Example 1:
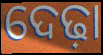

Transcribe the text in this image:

ଦେଢ଼ା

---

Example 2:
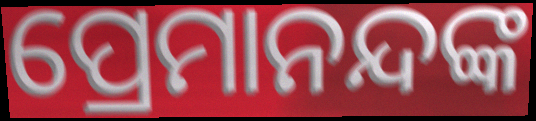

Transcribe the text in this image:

ପ୍ରେମାନନ୍ଦଙ୍କ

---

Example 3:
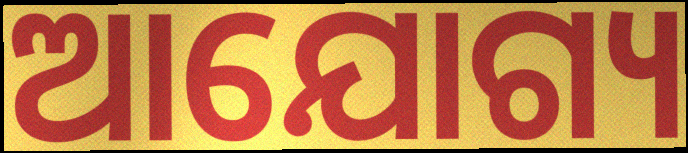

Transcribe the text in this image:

ଆଯୋଗ୍ୟ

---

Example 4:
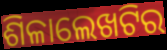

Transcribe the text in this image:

ଶିଳାଲେଖଟିର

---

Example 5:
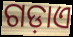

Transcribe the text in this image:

ଗଡ଼ାଏ